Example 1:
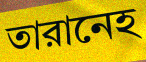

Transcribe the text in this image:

তারানেহ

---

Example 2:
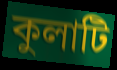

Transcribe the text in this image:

কুলাটি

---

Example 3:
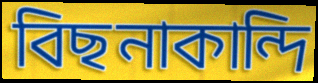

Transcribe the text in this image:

বিছনাকান্দি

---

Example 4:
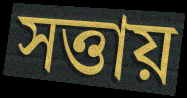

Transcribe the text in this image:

সত্তায়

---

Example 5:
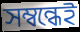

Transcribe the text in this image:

সম্বন্ধেই